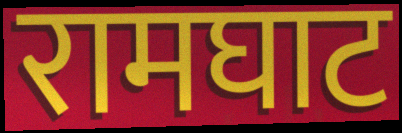
रामघाट